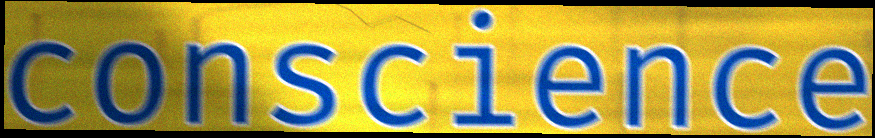
conscience